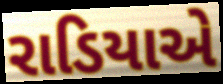
રાડિયાએ